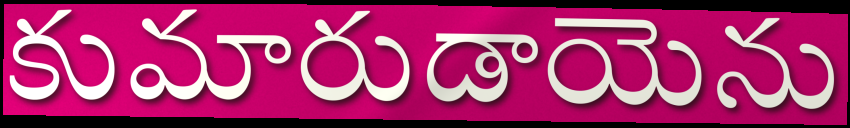
కుమారుడాయెను